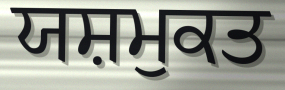
ਯਸ਼ਮੁਕਤ